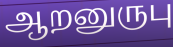
ஆறனுருபு